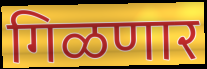
गिळणार